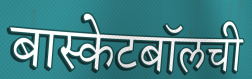
बास्केटबॉलची